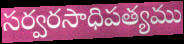
సర్వరసాధిపత్యము